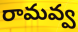
రామవ్వ